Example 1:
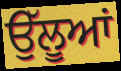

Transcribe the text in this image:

ਉੱਲੂਆਂ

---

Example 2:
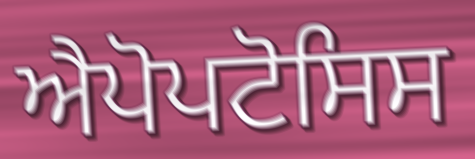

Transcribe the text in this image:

ਐਪੋਪਟੋਸਿਸ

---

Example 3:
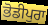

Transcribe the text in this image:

ਭੋਡੀਪੁਰਾ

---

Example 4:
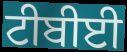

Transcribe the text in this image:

ਟੀਬੀਈ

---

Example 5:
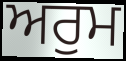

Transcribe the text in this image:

ਅਰੁਮ